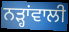
ਨੜ੍ਹਾਂਵਾਲੀ